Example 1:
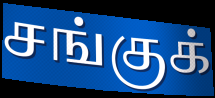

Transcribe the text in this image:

சங்குக்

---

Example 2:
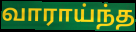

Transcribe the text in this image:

வாராய்ந்த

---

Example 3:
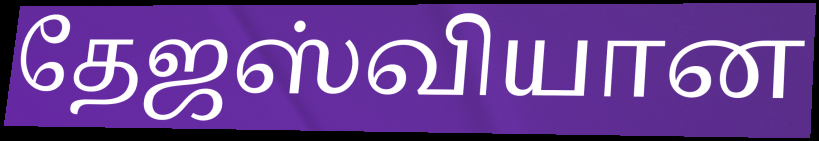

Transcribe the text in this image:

தேஜஸ்வியான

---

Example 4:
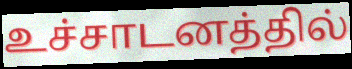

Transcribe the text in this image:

உச்சாடனத்தில்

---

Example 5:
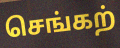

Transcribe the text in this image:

செங்கற்